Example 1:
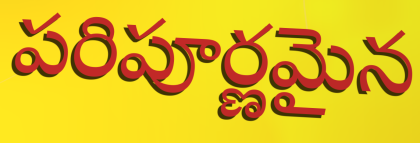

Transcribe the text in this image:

పరిపూర్ణమైన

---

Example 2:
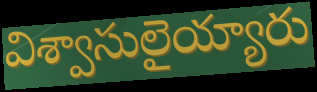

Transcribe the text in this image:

విశ్వాసులైయ్యారు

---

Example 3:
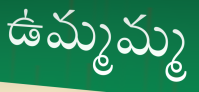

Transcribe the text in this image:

ఉమ్మమ్మ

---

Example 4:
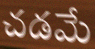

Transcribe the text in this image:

చడమే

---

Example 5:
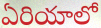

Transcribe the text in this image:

ఏరియాలో